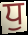
ਧੁ